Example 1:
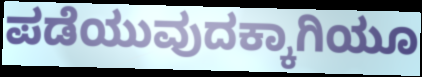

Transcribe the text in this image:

ಪಡೆಯುವುದಕ್ಕಾಗಿಯೂ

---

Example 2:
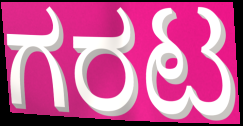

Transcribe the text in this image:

ಗರಟ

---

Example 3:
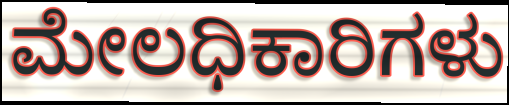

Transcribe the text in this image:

ಮೇಲಧಿಕಾರಿಗಳು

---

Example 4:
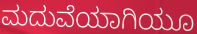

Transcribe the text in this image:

ಮದುವೆಯಾಗಿಯೂ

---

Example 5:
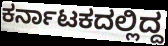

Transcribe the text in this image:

ಕರ್ನಾಟಕದಲ್ಲಿದ್ದ